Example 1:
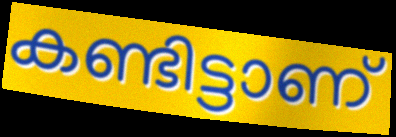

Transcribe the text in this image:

കണ്ടിട്ടാണ്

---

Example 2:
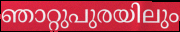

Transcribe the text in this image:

ഞാറ്റുപുരയിലും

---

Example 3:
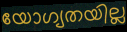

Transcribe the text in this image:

യോഗ്യതയില്ല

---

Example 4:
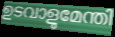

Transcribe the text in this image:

ഉടവാളുമേന്തി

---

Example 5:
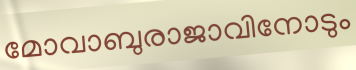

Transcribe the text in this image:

മോവാബുരാജാവിനോടും